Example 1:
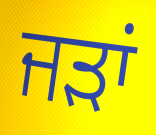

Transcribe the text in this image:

ਜੜਾਂ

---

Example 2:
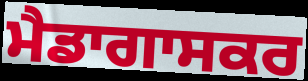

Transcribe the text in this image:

ਮੈਡਾਗਾਸਕਰ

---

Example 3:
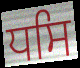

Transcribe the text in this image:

ਧਸਿ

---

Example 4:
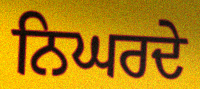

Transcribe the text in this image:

ਨਿਘਰਦੇ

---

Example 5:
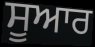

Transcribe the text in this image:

ਸੂਆਰ